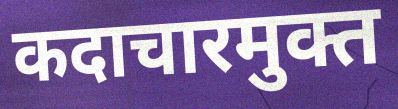
कदाचारमुक्त